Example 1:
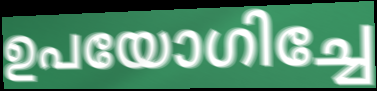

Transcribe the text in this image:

ഉപയോഗിച്ചേ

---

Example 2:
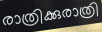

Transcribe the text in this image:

രാത്രിക്കുരാത്രി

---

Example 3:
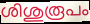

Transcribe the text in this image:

ശിശുരൂപം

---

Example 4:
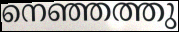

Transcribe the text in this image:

നെഞ്ഞത്തു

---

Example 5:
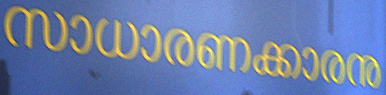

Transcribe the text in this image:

സാധാരണക്കാരനു